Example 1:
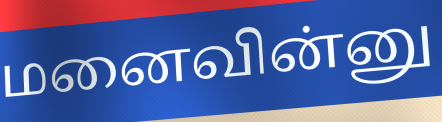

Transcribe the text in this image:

மனைவின்னு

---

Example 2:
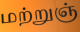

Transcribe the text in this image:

மற்றுஞ்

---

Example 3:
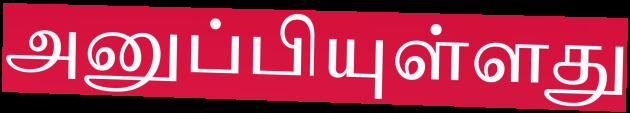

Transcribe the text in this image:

அனுப்பியுள்ளது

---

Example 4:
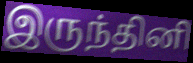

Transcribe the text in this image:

இருந்தினி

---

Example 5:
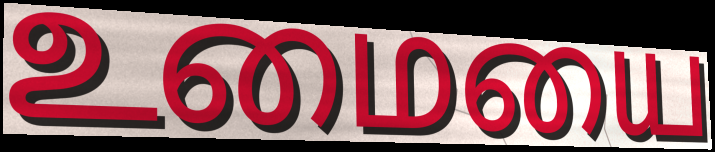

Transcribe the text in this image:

உமையை